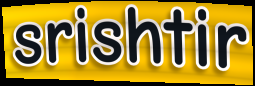
srishtir